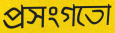
প্ৰসংগতো